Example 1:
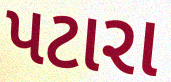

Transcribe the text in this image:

પટારા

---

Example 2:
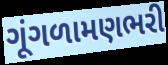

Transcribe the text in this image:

ગૂંગળામણભરી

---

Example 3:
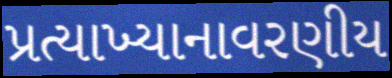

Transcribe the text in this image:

પ્રત્યાખ્યાનાવરણીય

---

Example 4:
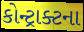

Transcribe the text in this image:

કોન્ટ્રાક્ટના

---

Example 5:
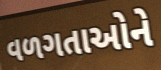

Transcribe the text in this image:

વળગતાઓને